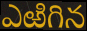
ఎఱిగిన